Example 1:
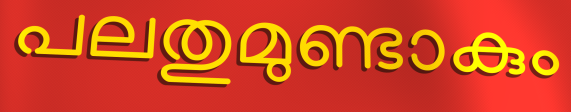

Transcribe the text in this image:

പലതുമുണ്ടാകും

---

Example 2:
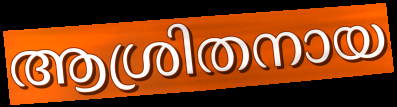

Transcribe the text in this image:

ആശ്രിതനായ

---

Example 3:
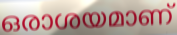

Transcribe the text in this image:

ഒരാശയമാണ്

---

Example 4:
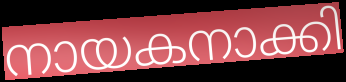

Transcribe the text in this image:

നായകനാക്കി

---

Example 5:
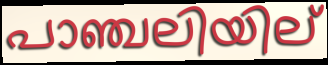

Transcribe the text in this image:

പാഞ്ചലിയില്